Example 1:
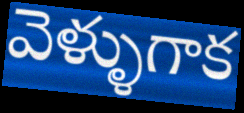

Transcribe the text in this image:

వెళ్ళుగాక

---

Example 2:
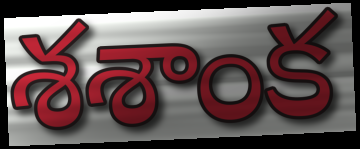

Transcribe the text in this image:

శశాంక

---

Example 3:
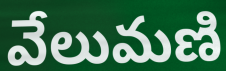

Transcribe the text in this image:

వేలుమణి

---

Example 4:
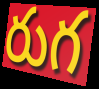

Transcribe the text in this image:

రుగ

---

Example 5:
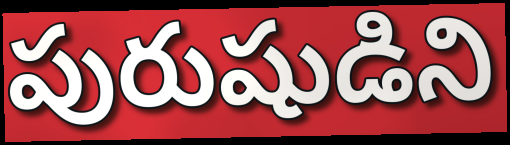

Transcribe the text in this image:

పురుషుడిని